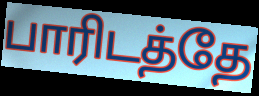
பாரிடத்தே